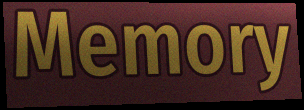
Memory